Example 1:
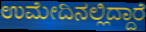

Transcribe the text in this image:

ಉಮೇದಿನಲ್ಲಿದ್ದಾರೆ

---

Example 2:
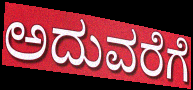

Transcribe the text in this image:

ಅದುವರೆಗೆ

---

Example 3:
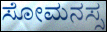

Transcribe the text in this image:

ಸೋಮನಸ್ಸ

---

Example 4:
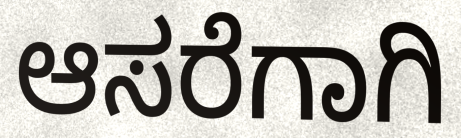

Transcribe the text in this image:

ಆಸರೆಗಾಗಿ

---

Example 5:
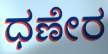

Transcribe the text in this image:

ಧಣೇರ